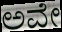
ಅವೇ